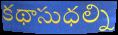
కథాసుధల్ని